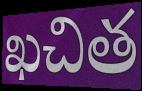
ఖచిత